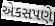
એકસપણે